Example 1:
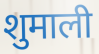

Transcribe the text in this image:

शुमाली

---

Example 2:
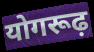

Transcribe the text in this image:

योगरूढ़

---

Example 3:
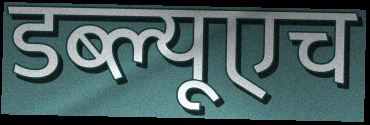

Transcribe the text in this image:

डब्ल्यूएच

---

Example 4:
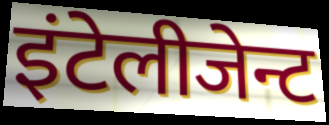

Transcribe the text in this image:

इंटेलीजेन्ट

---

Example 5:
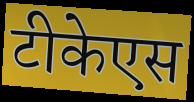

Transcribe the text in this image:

टीकेएस